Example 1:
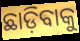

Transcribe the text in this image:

ଛାଡ଼ିବାକୁ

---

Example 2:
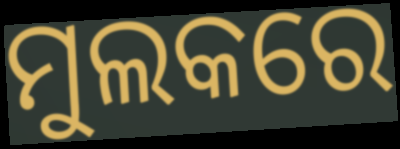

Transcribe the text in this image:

ମୁଲକରେ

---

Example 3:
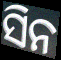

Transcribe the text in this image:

ସିନ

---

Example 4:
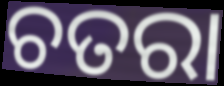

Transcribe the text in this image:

ଚତରା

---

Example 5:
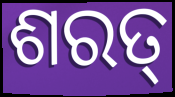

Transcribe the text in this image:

ଶରତ୍